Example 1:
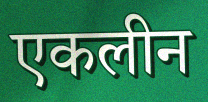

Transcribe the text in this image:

एकलीन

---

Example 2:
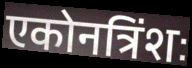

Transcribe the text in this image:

एकोनत्रिंशः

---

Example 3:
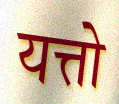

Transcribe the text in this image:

यत्तो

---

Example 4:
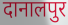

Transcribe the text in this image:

दानालपुर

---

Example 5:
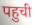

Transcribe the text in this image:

पहुची